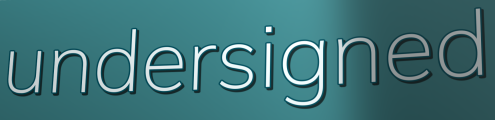
undersigned